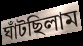
ঘাঁটছিলাম